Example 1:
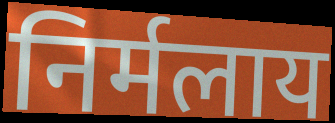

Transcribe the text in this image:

निर्मलाय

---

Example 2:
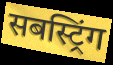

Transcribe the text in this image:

सबस्ट्रिंग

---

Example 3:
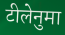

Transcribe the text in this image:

टीलेनुमा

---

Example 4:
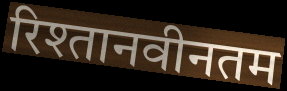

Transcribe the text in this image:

रिश्तानवीनतम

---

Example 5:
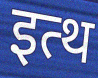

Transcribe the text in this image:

इत्थ